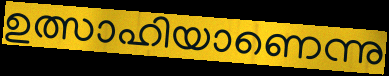
ഉത്സാഹിയാണെന്നു